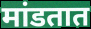
मांडतात